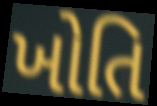
ખોતિ